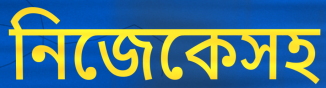
নিজেকেসহ